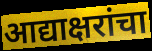
आद्याक्षरांचा